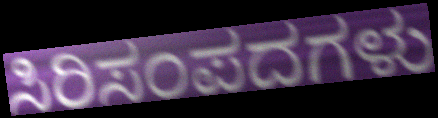
ಸಿರಿಸಂಪದಗಳು